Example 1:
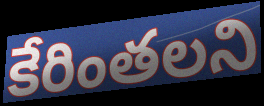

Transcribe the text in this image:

కేరింతలని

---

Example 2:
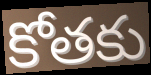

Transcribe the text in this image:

కోతకు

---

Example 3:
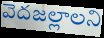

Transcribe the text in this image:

వెదజల్లాలని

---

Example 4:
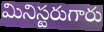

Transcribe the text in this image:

మినిస్టరుగారు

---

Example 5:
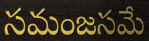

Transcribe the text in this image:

సమంజసమే